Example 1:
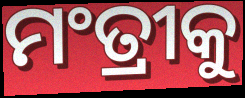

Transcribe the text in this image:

ମଂତ୍ରୀକୁ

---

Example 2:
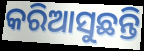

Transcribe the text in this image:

କରିଆସୁଛନ୍ତି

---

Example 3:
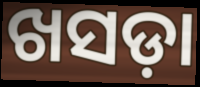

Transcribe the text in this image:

ଖସଡ଼ା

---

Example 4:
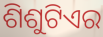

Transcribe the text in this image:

ଶିଶୁଟିଏର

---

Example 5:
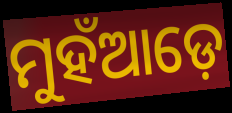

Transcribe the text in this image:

ମୁହଁଆଡ଼େ